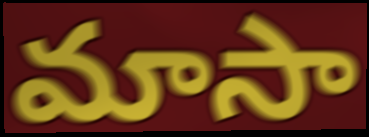
మాసా